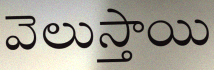
వెలుస్తాయి